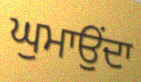
ਘੁਮਾਉਂਦਾ